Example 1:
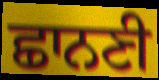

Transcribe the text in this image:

ਛਾਨਣੀ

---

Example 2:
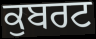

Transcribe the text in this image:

ਕੁਬਰਟ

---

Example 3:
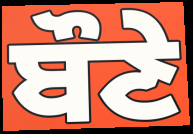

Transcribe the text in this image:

ਬੌਣੇ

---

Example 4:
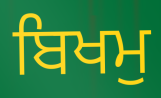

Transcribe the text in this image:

ਬਿਖਮੁ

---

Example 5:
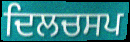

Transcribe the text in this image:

ਦਿਲਚਸਪ